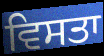
ਵਿਸਤਾ